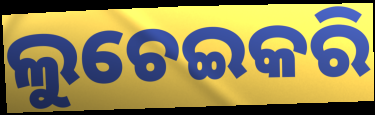
ଲୁଚେଇକରି